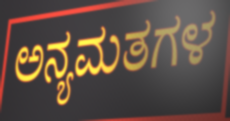
ಅನ್ಯಮತಗಳ